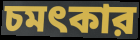
চমৎকার